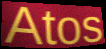
Atos